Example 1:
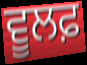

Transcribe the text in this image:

ਵੂਲਫ਼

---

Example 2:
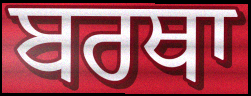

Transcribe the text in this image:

ਬਰਥਾ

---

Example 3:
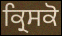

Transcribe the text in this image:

ਕ੍ਰਿਸਕੋ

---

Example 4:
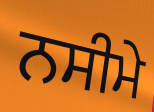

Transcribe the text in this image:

ਨਸੀਮੇ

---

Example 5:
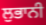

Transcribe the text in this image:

ਲੁਭਾਨੀ